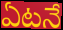
ఏటనే